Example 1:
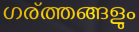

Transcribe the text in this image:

ഗര്ത്തങ്ങളും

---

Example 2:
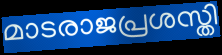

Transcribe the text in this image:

മാടരാജപ്രശസ്തി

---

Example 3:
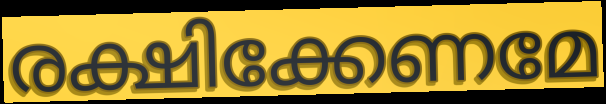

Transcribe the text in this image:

രക്ഷിക്കേണമേ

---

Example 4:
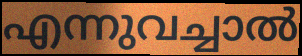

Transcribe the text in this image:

എന്നുവച്ചാൽ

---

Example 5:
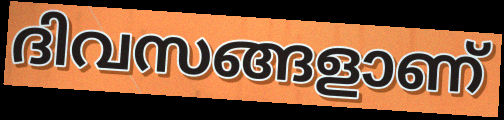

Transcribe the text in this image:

ദിവസങ്ങളാണ്